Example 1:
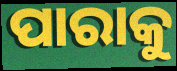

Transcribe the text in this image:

ପାରାକୁ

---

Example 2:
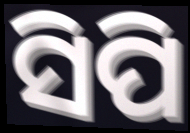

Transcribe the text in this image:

ସିପି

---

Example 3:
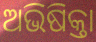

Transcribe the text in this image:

ଅଭିଷିକ୍ତା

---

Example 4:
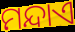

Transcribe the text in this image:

ମନ୍ଦାଏ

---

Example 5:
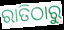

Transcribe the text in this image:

ରାତିଠାରୁ